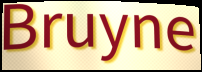
Bruyne